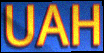
UAH